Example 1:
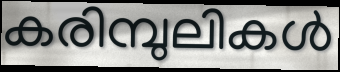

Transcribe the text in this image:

കരിമ്പുലികൾ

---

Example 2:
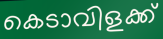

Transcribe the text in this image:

കെടാവിളക്ക്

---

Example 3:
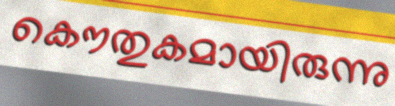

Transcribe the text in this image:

കൌതുകമായിരുന്നു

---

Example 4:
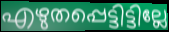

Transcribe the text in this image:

എഴുതപ്പെട്ടിട്ടില്ലേ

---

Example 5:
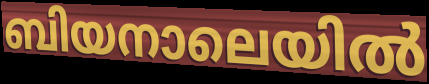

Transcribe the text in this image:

ബിയനാലെയിൽ